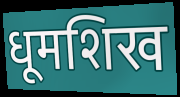
धूमशिख